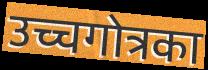
उच्चगोत्रका